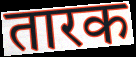
तारक